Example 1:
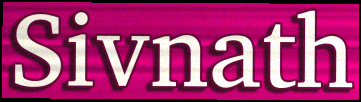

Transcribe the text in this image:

Sivnath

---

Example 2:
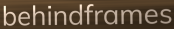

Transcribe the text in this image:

behindframes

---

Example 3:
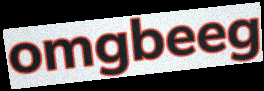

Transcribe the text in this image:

omgbeeg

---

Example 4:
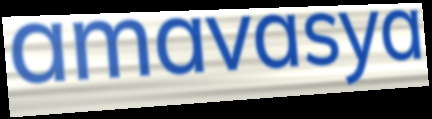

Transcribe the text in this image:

amavasya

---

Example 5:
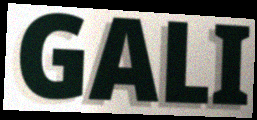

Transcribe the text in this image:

GALI